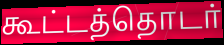
கூட்டத்தொடர்